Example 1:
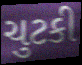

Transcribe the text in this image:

ચુટકી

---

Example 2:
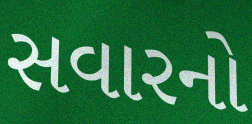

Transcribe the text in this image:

સવારનો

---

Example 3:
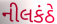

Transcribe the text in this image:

નીલકંઠે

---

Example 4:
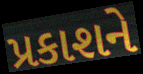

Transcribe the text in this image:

પ્રકાશને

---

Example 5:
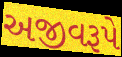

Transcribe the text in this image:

અજીવરૂપે